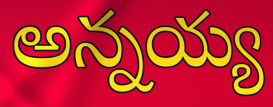
అన్నయ్య